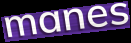
manes